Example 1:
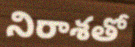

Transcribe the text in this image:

నిరాశతో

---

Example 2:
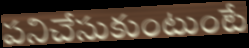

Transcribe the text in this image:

పనిచేసుకుంటుంటే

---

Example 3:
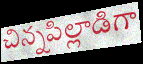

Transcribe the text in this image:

చిన్నపిల్లాడిగా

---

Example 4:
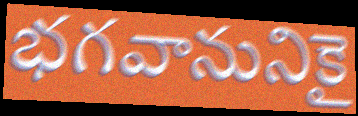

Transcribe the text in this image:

భగవానునికై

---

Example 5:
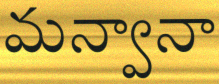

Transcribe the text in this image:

మన్వానా